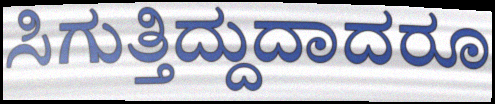
ಸಿಗುತ್ತಿದ್ದುದಾದರೂ